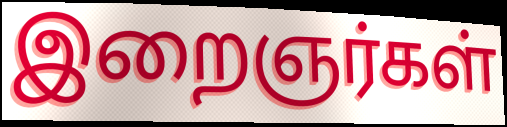
இறைஞர்கள்